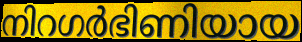
നിറഗർഭിണിയായ